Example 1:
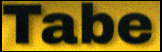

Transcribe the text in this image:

Tabe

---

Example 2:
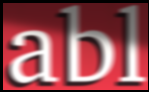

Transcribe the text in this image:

abl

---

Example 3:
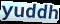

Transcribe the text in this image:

yuddh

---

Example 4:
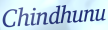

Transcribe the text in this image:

Chindhunu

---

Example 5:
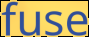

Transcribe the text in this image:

fuse